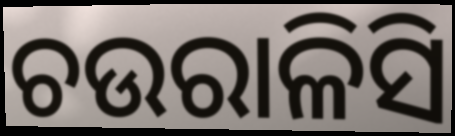
ଚଉରାଳିସି